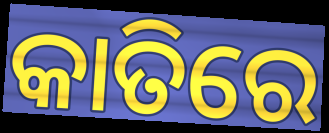
କାତିରେ